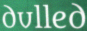
dulled